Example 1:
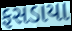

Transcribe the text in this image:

ફસડાયા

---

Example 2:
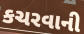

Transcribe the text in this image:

કચરવાની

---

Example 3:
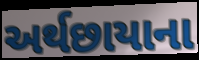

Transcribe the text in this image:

અર્થછાયાના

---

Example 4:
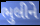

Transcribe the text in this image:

ભુલીને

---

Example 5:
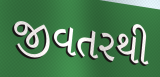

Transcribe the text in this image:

જીવતરથી